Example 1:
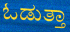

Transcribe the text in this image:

ಓಡುತ್ತಾ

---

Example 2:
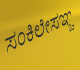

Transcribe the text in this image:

ಸಂಕಿಲೇಸಞ್ಚ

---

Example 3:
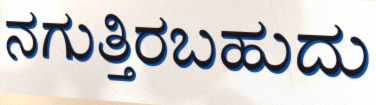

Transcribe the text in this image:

ನಗುತ್ತಿರಬಹುದು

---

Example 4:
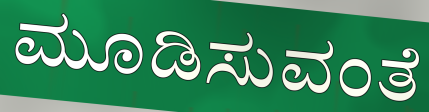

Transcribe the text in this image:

ಮೂಡಿಸುವಂತೆ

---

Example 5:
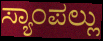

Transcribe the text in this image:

ಸ್ಯಾಂಪಲ್ಲು